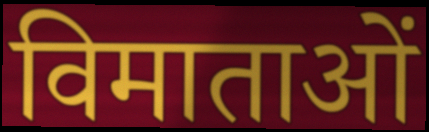
विमाताओं